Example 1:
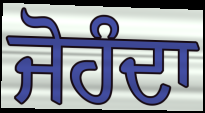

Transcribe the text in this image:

ਜੋਹੰਦਾ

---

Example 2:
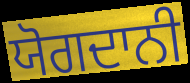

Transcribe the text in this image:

ਯੋਗਦਾਨੀ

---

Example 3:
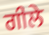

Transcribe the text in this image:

ਗੀਲੇ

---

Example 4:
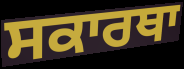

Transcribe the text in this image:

ਸਕਾਰਥਾ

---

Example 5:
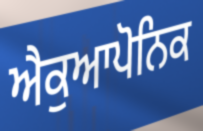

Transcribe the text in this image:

ਐਕੁਆਪੋਨਿਕ